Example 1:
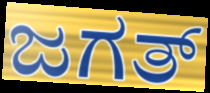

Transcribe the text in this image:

ಜಗತ್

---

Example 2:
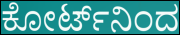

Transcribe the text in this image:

ಕೋರ್ಟ್‌ನಿಂದ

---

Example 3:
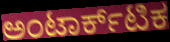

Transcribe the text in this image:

ಅಂಟಾರ್ಕ್‍ಟಿಕ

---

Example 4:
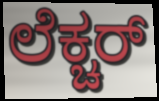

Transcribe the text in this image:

ಲೆಕ್ಚರ್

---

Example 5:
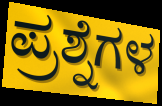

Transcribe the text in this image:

ಪ್ರಶ್ನೆಗಳ